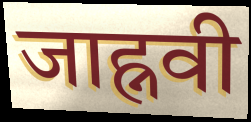
जाह्नवी